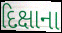
દિક્ષાના